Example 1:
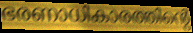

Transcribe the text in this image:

ഭരണാധികാരത്തിന്റെ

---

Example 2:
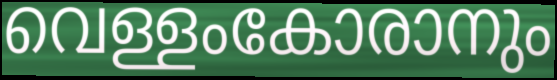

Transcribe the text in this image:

വെള്ളംകോരാനും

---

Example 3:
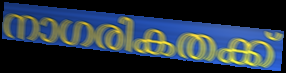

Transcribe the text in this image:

നാഗരികതക്ക്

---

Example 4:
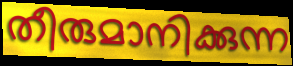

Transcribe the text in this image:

തീരുമാനിക്കുന്ന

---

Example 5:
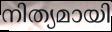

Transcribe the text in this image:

നിത്യമായി